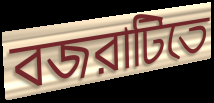
বজরাটিতে